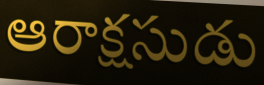
ఆరాక్షసుడు